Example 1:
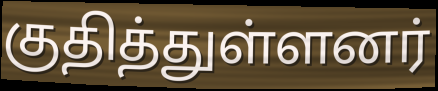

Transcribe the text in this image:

குதித்துள்ளனர்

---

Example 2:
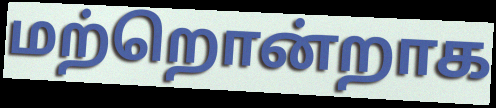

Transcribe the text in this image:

மற்றொன்றாக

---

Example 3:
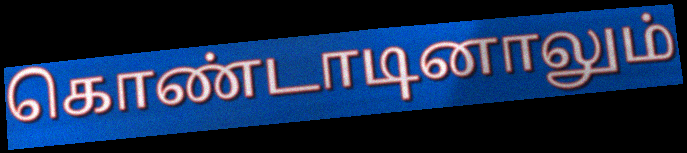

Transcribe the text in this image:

கொண்டாடினாலும்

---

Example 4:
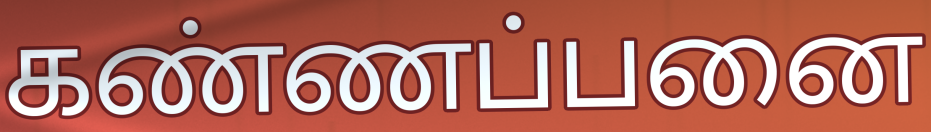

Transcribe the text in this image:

கண்ணப்பனை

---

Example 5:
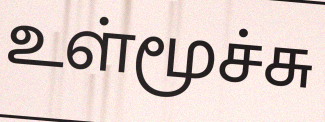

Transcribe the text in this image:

உள்மூச்சு